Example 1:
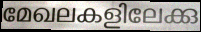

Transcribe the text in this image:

മേഖലകളിലേക്കു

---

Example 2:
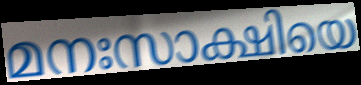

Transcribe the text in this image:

മനഃസാക്ഷിയെ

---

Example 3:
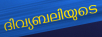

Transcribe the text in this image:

ദിവ്യബലിയുടെ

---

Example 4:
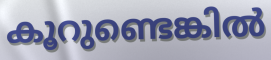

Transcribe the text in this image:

കൂറുണ്ടെങ്കിൽ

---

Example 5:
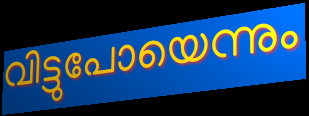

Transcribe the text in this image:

വിട്ടുപോയെന്നും